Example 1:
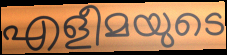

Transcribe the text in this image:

എളീമയുടെ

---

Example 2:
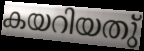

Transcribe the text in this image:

കയറിയതു്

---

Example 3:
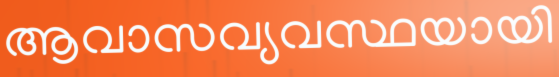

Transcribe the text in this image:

ആവാസവ്യവസ്ഥയായി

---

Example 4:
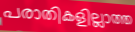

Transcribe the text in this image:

പരാതികളില്ലാത്ത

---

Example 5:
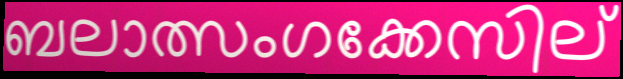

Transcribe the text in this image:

ബലാത്സംഗക്കേസില്